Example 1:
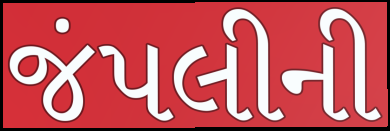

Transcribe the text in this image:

જંપલીની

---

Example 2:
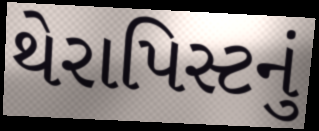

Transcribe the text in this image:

થેરાપિસ્ટનું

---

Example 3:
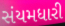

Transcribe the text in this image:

સંયમધારી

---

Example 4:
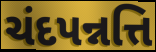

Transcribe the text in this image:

ચંદપન્નત્તિ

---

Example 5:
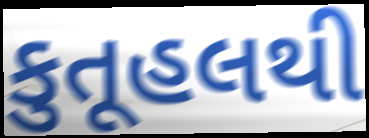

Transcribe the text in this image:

કુતૂહલથી